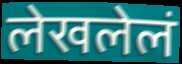
लेखलेलं